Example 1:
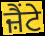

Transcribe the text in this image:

ਜ਼ੈਂਟੇ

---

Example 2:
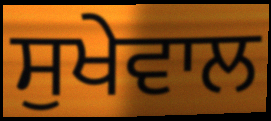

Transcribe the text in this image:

ਸੁਖੇਵਾਲ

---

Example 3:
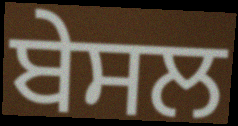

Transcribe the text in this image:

ਬੇਸਲ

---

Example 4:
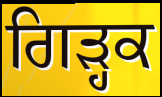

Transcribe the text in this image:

ਗਿੜ੍ਹਕ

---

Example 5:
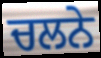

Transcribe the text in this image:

ਚਲਨੇ